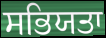
ਸਭਿਯਤਾ